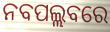
ନବପଲ୍ଲବରେ